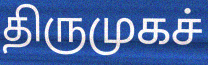
திருமுகச்